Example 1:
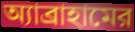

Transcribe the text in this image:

অ্যাব্রাহামের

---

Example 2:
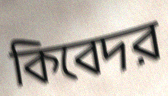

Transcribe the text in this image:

কিবেদর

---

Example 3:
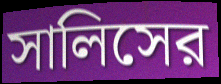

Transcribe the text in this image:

সালিসের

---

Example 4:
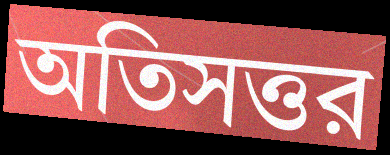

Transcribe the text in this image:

অতিসত্তর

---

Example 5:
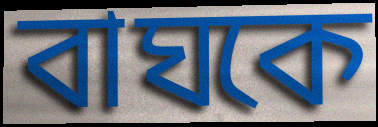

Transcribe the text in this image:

বাঘকে